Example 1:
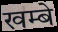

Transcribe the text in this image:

खम्बे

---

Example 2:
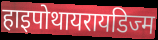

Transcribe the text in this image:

हाइपोथायरायडिज्म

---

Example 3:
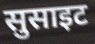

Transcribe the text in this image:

सुसाइट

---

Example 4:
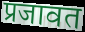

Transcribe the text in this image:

प्रजावत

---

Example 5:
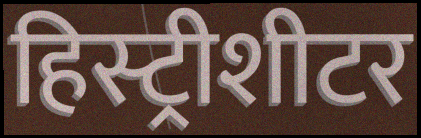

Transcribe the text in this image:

हिस्‍ट्रीशीटर